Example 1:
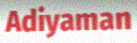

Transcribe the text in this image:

Adiyaman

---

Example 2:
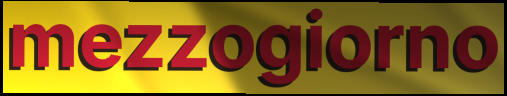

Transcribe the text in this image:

mezzogiorno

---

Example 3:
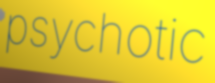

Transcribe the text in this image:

psychotic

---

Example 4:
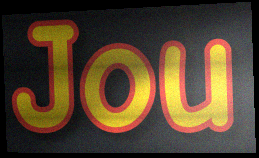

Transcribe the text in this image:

Jou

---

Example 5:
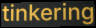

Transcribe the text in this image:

tinkering